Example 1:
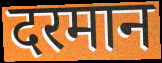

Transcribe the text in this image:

दरमान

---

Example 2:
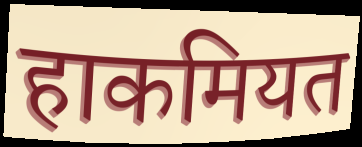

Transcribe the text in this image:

हाकमियत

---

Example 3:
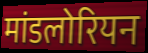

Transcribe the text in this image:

मांडलोरियन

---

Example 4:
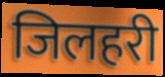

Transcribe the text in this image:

जिलहरी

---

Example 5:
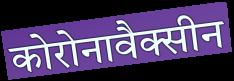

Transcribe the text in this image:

कोरोनावैक्सीन